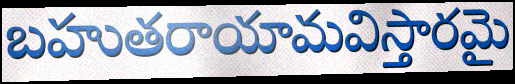
బహుతరాయామవిస్తారమై